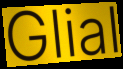
Glial